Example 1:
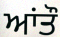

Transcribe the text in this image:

ਆਂਤੌ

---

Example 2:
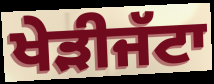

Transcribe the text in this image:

ਖੇੜੀਜੱਟਾ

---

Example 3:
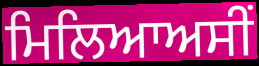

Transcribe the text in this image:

ਮਿਲਿਆਅਸੀਂ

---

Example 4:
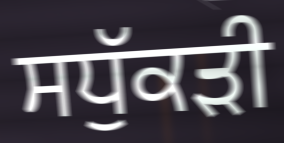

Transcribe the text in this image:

ਸਧੁੱਕੜੀ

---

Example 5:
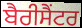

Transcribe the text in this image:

ਬੈਰੀਸੈਂਟਰ